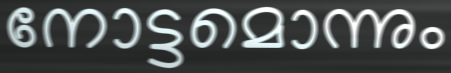
നോട്ടമൊന്നും